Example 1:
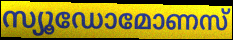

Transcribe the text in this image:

സ്യൂഡോമോണസ്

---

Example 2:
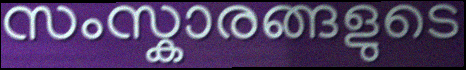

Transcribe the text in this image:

സംസ്കാരങ്ങളുടെ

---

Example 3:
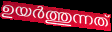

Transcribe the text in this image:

ഉയർത്തുന്നത്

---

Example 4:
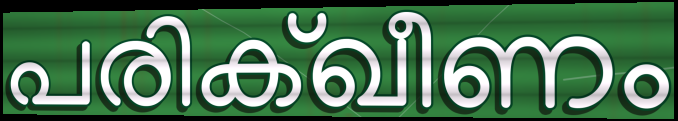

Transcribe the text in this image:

പരിക്ഖീണം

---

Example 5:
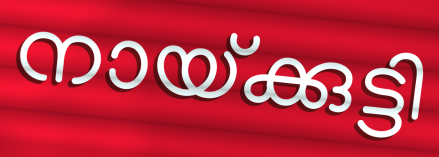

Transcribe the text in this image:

നായ്‌ക്കുട്ടി